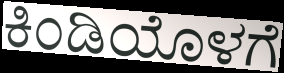
ಕಿಂಡಿಯೊಳಗೆ